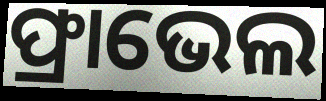
ଫ୍ରାଭେଲ